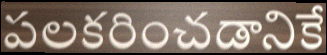
పలకరించడానికే